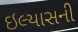
ઇલ્યાસની